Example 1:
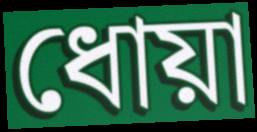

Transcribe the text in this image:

ধোয়া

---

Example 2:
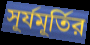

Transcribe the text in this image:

সূর্যমূর্তির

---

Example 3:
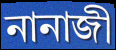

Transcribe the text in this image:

নানাজী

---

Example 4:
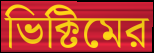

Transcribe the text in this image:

ভিক্টিমের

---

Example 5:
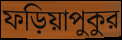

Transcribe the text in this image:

ফড়িয়াপুকুর